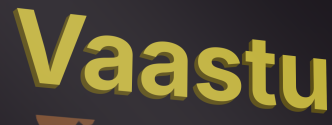
Vaastu